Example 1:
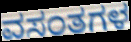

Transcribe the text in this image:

ವಸಂತಗಳ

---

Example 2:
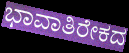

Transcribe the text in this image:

ಭಾವಾತಿರೇಕದ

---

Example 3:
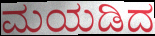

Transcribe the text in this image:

ಮಯಡಿದ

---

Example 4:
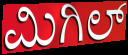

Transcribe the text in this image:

ಮಿಗಿಲ್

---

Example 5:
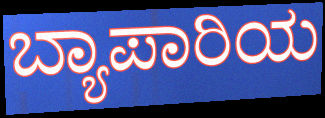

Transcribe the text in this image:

ಬ್ಯಾಪಾರಿಯ